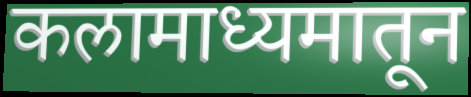
कलामाध्यमातून